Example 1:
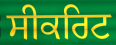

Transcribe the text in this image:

ਸੀਕਰਿਟ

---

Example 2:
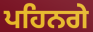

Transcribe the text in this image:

ਪਹਿਨਗੇ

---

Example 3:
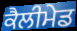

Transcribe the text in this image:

ਕੈਲੀਮੇਡ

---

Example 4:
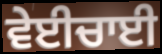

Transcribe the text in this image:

ਵੇਈਚਾਈ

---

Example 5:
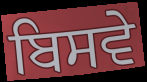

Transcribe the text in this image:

ਬਿਸਵੇ